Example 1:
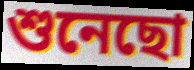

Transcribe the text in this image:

শুনেছো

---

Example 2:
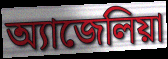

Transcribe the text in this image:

অ্যাজেলিয়া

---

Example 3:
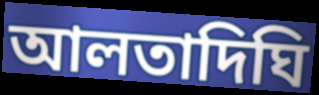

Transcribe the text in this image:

আলতাদিঘি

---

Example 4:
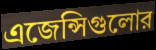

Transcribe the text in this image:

এজেন্সিগুলোর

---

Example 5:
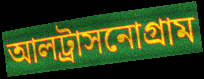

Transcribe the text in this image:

আলট্রাসনোগ্রাম